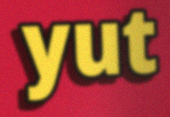
yut